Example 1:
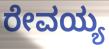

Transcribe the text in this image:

ರೇವಯ್ಯ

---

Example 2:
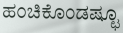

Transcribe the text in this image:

ಹಂಚಿಕೊಂಡಷ್ಟೂ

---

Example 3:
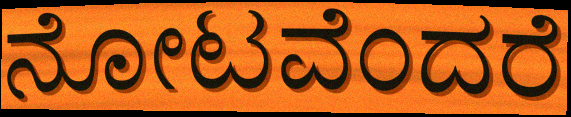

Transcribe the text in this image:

ನೋಟವೆಂದರೆ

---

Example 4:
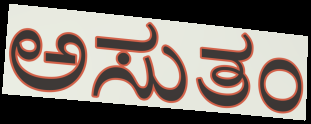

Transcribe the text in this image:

ಅಸುತಂ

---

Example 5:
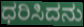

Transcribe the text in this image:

ಧರಿಸಿದನು